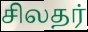
சிலதர்